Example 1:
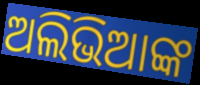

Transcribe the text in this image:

ଅଲିଭିଆଙ୍କ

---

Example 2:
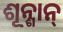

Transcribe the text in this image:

ଶୂନ୍ଶାନ୍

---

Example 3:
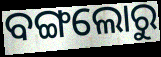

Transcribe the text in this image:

ବଙ୍ଗଲୋରୁ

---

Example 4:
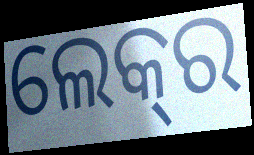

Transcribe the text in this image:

ଲେକ୍‍ର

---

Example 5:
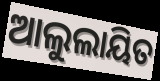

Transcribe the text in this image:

ଆଲୁଲାୟିତ